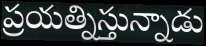
ప్రయత్నిస్తున్నాడు